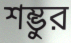
শম্ভুর